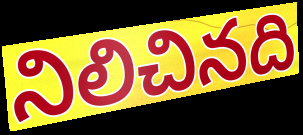
నిలిచినది